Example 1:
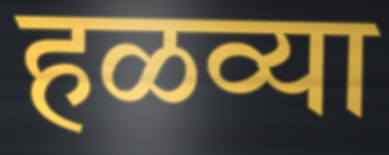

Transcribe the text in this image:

हळव्या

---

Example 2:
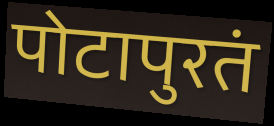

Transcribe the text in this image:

पोटापुरतं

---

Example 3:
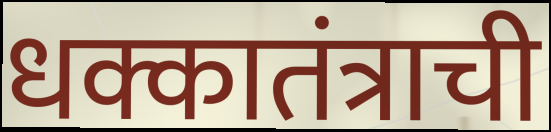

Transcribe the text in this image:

धक्कातंत्राची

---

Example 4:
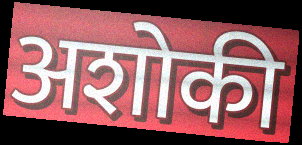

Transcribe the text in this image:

अशोकी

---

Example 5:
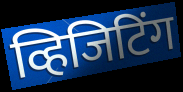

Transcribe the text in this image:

व्हिजिटिंग